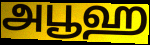
அபூஹ